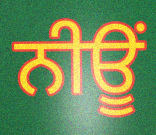
ਨੀਊਂ